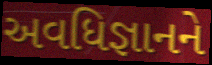
અવધિજ્ઞાનને